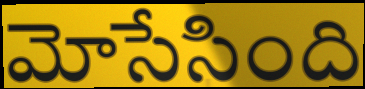
మోసేసింది